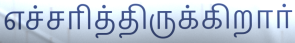
எச்சரித்திருக்கிறார்